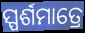
ସ୍ପର୍ଶମାତ୍ରେ